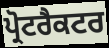
ਪ੍ਰੋਟਰੈਕਟਰ